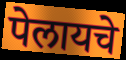
पेलायचे